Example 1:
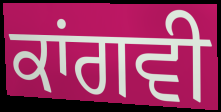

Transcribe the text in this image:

ਕਾਂਗਵੀ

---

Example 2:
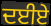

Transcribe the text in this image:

ਦਈਏ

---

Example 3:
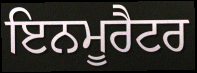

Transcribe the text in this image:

ਇਨਮੂਰੈਟਰ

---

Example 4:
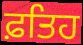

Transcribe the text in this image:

ਫ਼ਤਿਹ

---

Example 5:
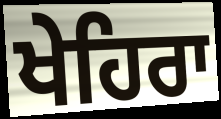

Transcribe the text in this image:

ਖੇਹਿਰਾ